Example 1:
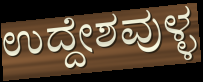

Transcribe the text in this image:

ಉದ್ದೇಶವುಳ್ಳ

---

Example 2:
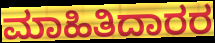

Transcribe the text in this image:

ಮಾಹಿತಿದಾರರ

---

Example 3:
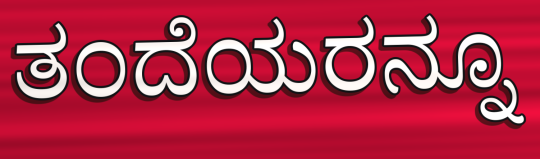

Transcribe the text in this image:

ತಂದೆಯರನ್ನೂ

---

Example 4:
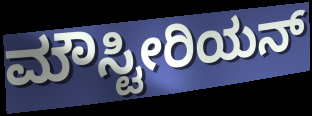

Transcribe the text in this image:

ಮೌಸ್ಟೀರಿಯನ್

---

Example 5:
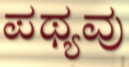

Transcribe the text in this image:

ಪಥ್ಯವು